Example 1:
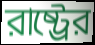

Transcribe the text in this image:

রাষ্ট্রের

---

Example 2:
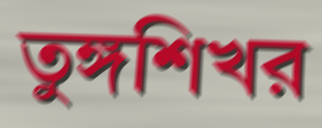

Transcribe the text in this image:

তুঙ্গশিখর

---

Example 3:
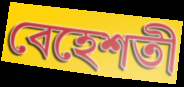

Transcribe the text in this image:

বেহেশতী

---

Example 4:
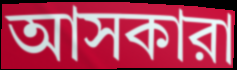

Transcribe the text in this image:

আসকারা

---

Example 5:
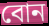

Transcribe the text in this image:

বোন